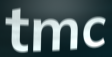
tmc